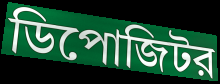
ডিপোজিটর